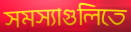
সমস্যাগুলিতে